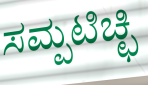
ಸಮ್ಪಟಿಚ್ಛಿ